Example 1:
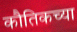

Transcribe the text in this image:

कौतिकच्या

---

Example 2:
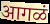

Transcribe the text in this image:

आगळं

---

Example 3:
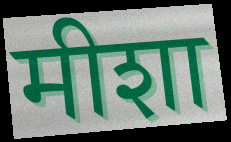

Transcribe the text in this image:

मीशा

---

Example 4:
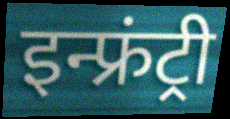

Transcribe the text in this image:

इन्फ्रंट्री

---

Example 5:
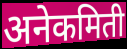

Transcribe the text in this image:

अनेकमिती